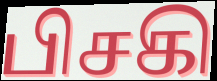
பிசகி